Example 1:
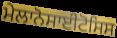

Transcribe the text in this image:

ਮੇਲਾਨੋਸਾਈਟੋਸਿਸ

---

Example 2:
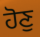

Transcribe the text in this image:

ਹੋਣੁ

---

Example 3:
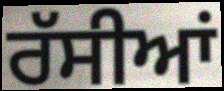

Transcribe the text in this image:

ਰੱਸੀਆਂ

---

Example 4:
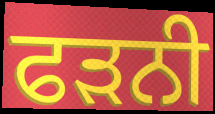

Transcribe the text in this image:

ਫੜਨੀ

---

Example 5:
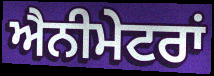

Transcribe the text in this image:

ਐਨੀਮੇਟਰਾਂ